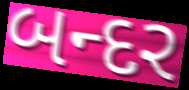
બન્દર